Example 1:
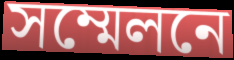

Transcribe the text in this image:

সম্মেলনে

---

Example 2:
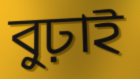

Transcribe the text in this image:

বুঢ়াই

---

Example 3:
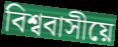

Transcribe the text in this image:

বিশ্ববাসীয়ে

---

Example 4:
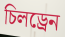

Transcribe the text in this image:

চিলড্ৰেন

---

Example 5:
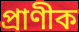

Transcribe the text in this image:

প্ৰাণীক